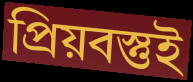
প্রিয়বস্তুই